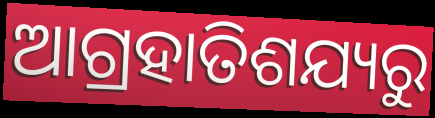
ଆଗ୍ରହାତିଶଯ୍ୟରୁ